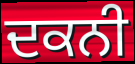
ਦਕਨੀ